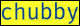
chubby